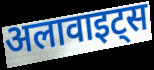
अलावाइट्स